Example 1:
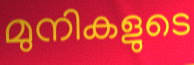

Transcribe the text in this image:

മുനികളുടെ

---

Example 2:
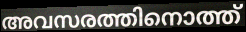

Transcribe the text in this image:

അവസരത്തിനൊത്ത്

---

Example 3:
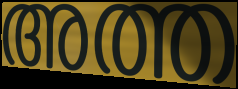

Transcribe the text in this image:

അത്ത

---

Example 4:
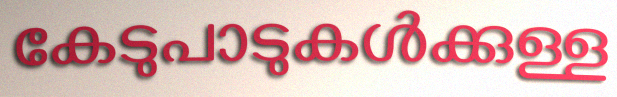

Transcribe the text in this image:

കേടുപാടുകൾക്കുള്ള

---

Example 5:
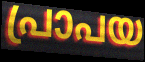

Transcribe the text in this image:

പ്രാപയ